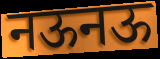
नऊनऊ